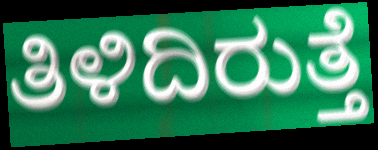
ತಿಳಿದಿರುತ್ತೆ